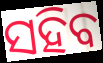
ସହିବ